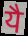
यै